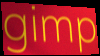
gimp